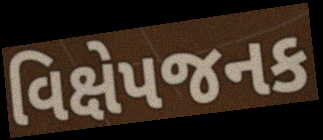
વિક્ષેપજનક